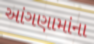
આંગણામાંના